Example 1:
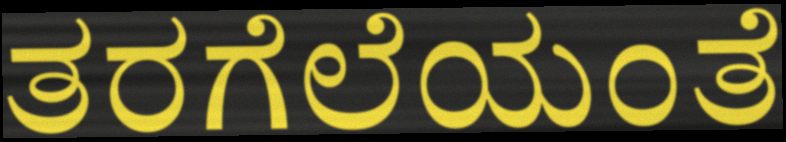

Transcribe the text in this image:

ತರಗೆಲೆಯಂತೆ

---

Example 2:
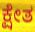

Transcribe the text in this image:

ಕ್ಷೇತ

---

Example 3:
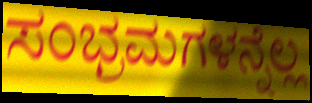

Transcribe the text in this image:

ಸಂಭ್ರಮಗಳನ್ನೆಲ್ಲ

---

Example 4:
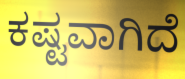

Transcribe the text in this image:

ಕಷ್ಟವಾಗಿದೆ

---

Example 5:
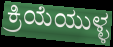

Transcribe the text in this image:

ಕ್ರಿಯೆಯುಳ್ಳ